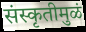
संस्कृतीमुळं